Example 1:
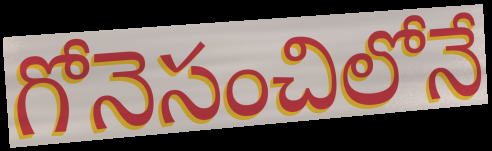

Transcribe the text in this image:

గోనెసంచిలోనే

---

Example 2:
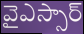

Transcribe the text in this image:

వైఎస్సార్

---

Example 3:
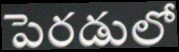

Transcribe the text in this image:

పెరడులో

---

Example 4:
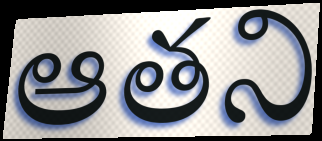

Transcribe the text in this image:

ఆతని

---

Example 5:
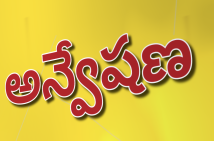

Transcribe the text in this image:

అన్వేషణ